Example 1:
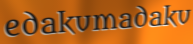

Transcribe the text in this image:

edakumadaku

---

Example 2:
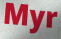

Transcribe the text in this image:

Myr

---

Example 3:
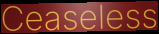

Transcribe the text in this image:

Ceaseless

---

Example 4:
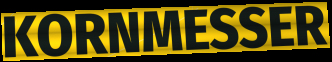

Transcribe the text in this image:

KORNMESSER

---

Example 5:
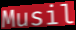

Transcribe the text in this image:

Musil